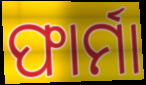
ଫାର୍ମା